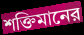
শক্তিমানের